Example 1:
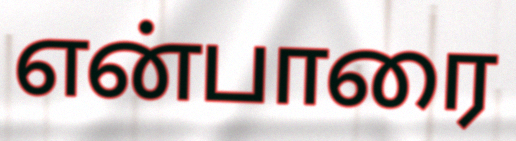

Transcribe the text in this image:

என்பாரை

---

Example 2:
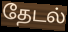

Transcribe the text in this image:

தேடல்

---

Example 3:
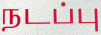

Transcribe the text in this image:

நடப்பு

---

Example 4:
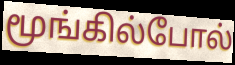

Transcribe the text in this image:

மூங்கில்போல்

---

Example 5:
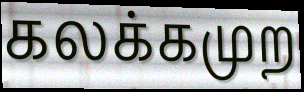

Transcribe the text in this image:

கலக்கமுற